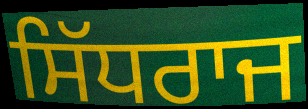
ਸਿੱਧਰਾਜ